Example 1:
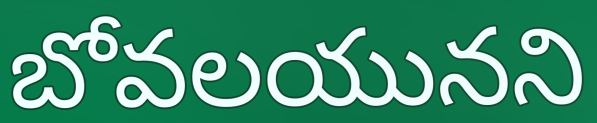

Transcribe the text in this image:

బోవలయునని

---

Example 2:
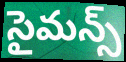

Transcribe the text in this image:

సైమన్స్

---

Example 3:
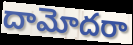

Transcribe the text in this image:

దామోదరా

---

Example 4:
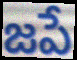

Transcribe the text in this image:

జపే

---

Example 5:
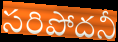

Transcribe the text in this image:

సరిపోదనీ